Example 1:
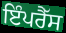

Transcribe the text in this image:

ਇੰਪਰੈੱਸ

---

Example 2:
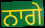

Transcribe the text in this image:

ਨਾਗੇ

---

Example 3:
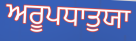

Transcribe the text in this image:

ਅਰੂਪਧਾਤੁਯਾ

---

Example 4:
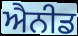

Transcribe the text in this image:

ਐਨੀਡ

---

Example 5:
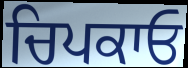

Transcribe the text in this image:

ਚਿਪਕਾਓ